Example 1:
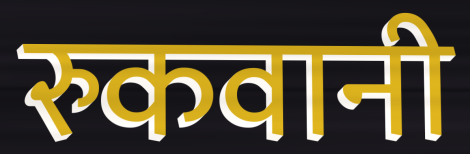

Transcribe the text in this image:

रुकवानी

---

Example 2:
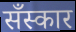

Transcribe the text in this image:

सँस्कार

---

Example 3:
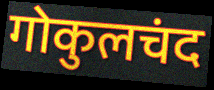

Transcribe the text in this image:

गोकुलचंद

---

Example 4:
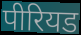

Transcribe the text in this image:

पीरियड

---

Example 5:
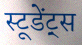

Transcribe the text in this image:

स्टूडेंट़्स